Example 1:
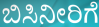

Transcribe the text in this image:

ಬಿಸಿನೀರಿಗೆ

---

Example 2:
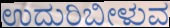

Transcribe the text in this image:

ಉದುರಿಬೀಳುವ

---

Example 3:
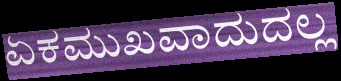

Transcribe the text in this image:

ಏಕಮುಖವಾದುದಲ್ಲ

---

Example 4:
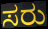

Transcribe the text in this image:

ಸರು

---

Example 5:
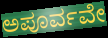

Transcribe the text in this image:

ಅಪೂರ್ವವೇ